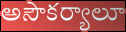
అసౌకర్యాలూ